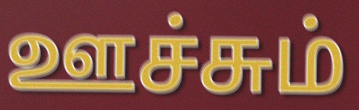
ஊச்சும்